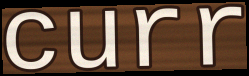
curr